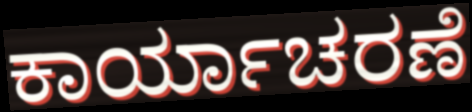
ಕಾರ್ಯಾಚರಣೆ